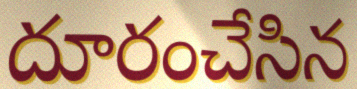
దూరంచేసిన